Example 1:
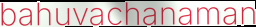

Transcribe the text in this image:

bahuvachanaman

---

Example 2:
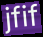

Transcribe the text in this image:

jfif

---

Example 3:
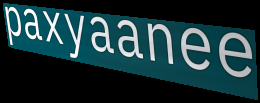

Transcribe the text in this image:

paxyaanee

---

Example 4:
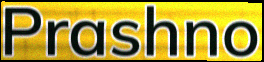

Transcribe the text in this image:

Prashno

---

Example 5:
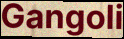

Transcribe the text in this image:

Gangoli